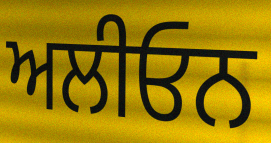
ਅਲੀਓਨ